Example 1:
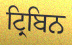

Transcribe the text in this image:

ਟ੍ਰਿਬਿਨ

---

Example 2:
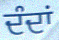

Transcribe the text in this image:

ਦੰਦਾਂ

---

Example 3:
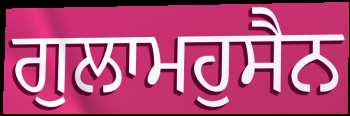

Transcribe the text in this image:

ਗੁਲਾਮਹੁਸੈਨ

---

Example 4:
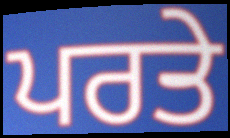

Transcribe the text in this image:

ਪਰਤੇ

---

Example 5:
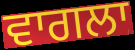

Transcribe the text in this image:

ਵਾਗਲਾ